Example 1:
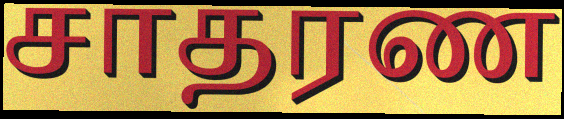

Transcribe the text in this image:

சாதரண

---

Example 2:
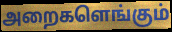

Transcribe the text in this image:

அறைகளெங்கும்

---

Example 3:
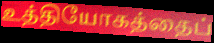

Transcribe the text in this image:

உத்தியோகத்தைப்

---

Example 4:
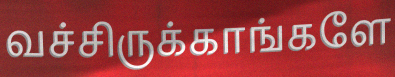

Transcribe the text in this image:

வச்சிருக்காங்களே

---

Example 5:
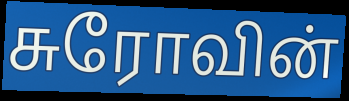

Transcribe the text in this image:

சுரோவின்